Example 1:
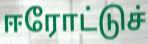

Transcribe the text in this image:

ஈரோட்டுச்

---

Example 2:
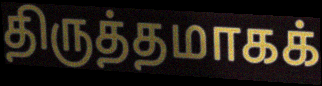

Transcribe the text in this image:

திருத்தமாகக்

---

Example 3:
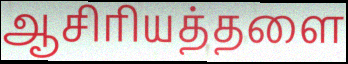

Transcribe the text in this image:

ஆசிரியத்தளை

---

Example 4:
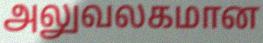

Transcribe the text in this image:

அலுவலகமான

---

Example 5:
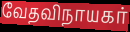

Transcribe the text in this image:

வேதவிநாயகர்